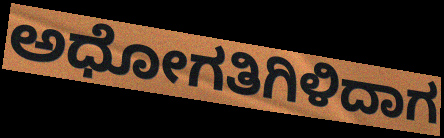
ಅಧೋಗತಿಗಿಳಿದಾಗ